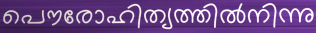
പൌരോഹിത്യത്തിൽനിന്നു